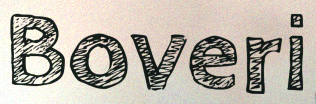
Boveri